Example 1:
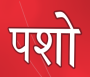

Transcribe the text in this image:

पशो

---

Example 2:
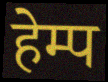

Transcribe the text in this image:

हेम्प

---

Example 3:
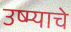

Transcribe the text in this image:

उष्म्याचे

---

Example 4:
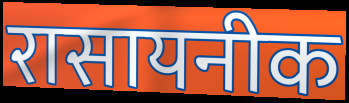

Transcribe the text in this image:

रासायनीक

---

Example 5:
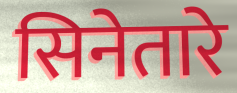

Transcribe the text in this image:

सिनेतारे